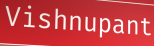
Vishnupant